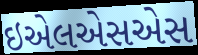
ઇએલએસએસ